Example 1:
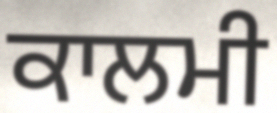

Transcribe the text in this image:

ਕਾਲਮੀ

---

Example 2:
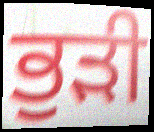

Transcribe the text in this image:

ਭੁੜੀ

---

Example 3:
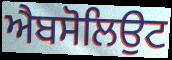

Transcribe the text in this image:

ਐਬਸੋਲਿਉਟ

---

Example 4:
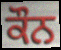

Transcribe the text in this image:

ਕੌਨ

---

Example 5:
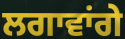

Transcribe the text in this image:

ਲਗਾਵਾਂਗੇ